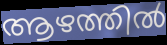
ആഴത്തിൽ